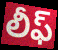
లీఫ్